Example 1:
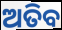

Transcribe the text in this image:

ଅତିବ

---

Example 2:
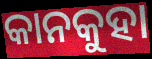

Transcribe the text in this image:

କାନକୁହା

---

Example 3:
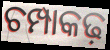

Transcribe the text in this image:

ଚମ୍ପାକଢ଼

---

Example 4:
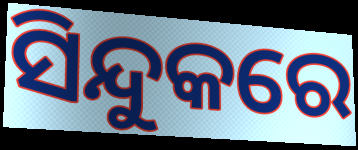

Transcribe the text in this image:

ସିନ୍ଦୁକରେ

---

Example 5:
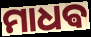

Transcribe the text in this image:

ମାଧଵ